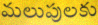
మలుపులకు